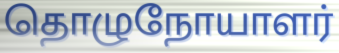
தொழுநோயாளர்